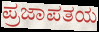
ಪ್ರಜಾಪತಯ